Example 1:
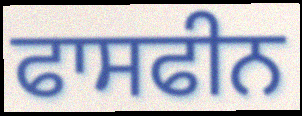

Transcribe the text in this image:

ਫਾਸਫੀਨ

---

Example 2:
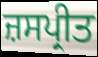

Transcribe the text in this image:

ਜ਼ਸਪ੍ਰੀਤ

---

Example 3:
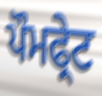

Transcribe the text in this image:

ਪੌਮਫ੍ਰੇਟ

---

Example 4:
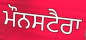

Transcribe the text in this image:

ਮੌਨਸਟੈਰਾ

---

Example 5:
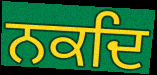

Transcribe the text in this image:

ਨਕਦਿ